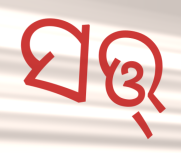
ସତ୍ତ୍